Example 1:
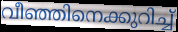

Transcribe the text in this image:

വീഞ്ഞിനെക്കുറിച്ച്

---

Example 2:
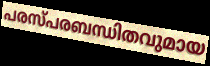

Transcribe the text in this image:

പരസ്പരബന്ധിതവുമായ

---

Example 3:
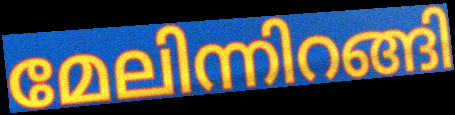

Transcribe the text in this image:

മേലിന്നിറങ്ങി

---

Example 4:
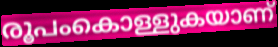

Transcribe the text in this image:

രൂപംകൊള്ളുകയാണ്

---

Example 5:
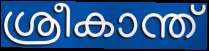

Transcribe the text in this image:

ശ്രീകാന്ത്